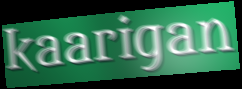
kaarigan